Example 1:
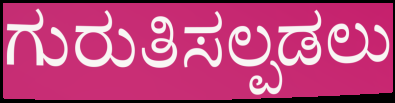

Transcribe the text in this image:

ಗುರುತಿಸಲ್ಪಡಲು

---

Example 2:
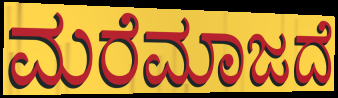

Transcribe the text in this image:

ಮರೆಮಾಜದೆ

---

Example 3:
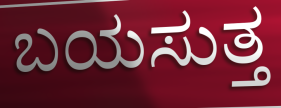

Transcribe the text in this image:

ಬಯಸುತ್ತ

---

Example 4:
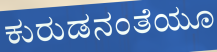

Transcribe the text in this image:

ಕುರುಡನಂತೆಯೂ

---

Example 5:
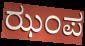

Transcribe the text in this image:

ಝಂಪ